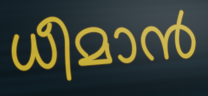
ധീമാൻ